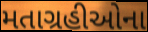
મતાગ્રહીઓના